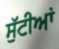
ਸੁੱਟੀਆਂ